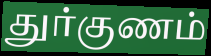
துர்குணம்